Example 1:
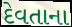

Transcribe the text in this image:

દેવતાના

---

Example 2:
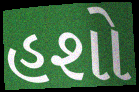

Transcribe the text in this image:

હશો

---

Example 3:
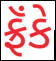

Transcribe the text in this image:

ફ્રૅંકે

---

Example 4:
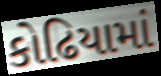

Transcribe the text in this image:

કોઢિયામાં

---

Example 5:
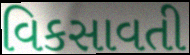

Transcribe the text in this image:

વિકસાવતી